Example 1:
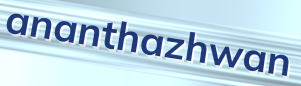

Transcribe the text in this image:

ananthazhwan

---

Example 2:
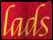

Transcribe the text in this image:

lads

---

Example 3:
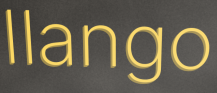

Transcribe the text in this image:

Ilango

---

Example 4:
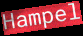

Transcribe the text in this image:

Hampel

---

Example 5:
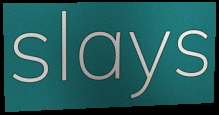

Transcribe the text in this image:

slays